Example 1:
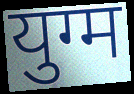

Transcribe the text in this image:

युग्म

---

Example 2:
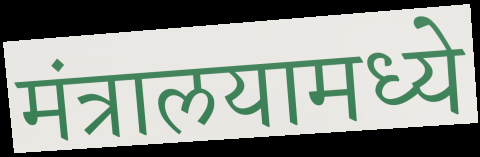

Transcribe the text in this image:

मंत्रालयामध्ये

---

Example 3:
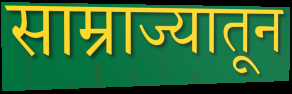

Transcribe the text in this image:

साम्राज्यातून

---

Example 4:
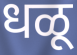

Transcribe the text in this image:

धळू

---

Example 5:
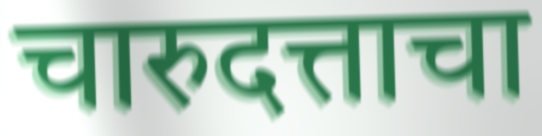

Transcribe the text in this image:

चारुदत्ताचा